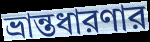
ভ্রান্তধারণার